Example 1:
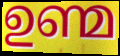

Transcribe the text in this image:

ഉണ്മ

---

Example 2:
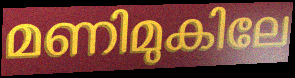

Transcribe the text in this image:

മണിമുകിലേ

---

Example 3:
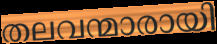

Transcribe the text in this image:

തലവന്മാരായി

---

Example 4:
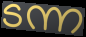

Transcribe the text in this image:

ടന്ന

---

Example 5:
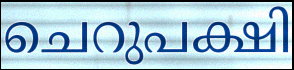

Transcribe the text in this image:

ചെറുപക്ഷി